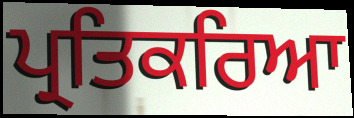
ਪ੍ਰਤਿਕਰਿਆ